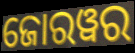
ଜୋରୱର